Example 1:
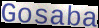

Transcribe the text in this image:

Gosaba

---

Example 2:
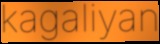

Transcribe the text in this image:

kagaliyan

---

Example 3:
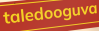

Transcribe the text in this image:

taledooguva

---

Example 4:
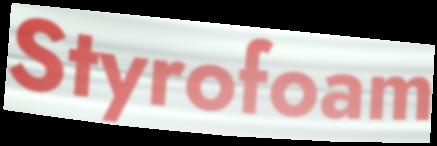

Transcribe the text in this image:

Styrofoam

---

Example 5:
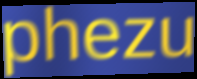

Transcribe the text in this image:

phezu